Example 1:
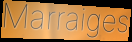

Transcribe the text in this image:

Marraiges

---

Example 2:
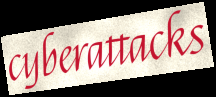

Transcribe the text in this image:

cyberattacks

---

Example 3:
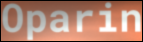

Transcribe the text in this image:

Oparin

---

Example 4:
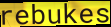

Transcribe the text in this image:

rebukes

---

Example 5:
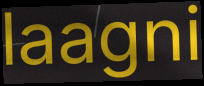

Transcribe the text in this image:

laagni